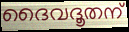
ദൈവദൂതന്